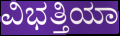
ವಿಭತ್ತಿಯಾ